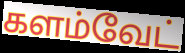
களம்வேட்